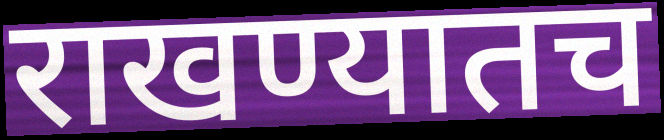
राखण्यातच